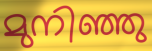
മുനിഞ്ഞു